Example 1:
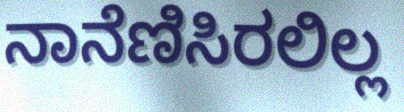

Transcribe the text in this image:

ನಾನೆಣಿಸಿರಲಿಲ್ಲ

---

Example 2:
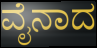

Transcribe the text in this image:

ವೈನಾದ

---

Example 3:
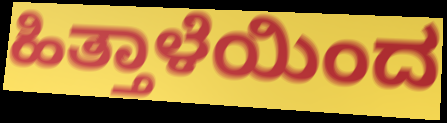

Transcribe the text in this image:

ಹಿತ್ತಾಳೆಯಿಂದ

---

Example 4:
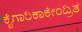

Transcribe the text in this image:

ಕೈಗಾರಿಕಾಕೇಂದ್ರಿತ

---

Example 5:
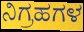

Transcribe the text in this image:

ನಿಗ್ರಹಗಳ